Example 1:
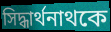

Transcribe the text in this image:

সিদ্ধার্থনাথকে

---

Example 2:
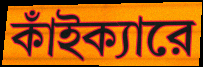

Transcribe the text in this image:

কাঁইক্যারে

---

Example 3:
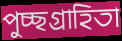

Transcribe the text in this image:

পুচ্ছগ্রাহিতা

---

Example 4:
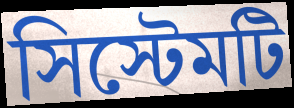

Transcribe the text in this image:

সিস্টেমটি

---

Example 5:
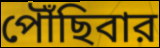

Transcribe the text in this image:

পৌঁছিবার